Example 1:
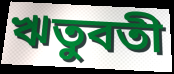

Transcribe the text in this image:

ঋতুবতী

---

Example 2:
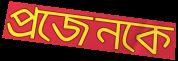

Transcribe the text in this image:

প্রজেনকে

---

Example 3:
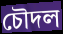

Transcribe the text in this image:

চৌদল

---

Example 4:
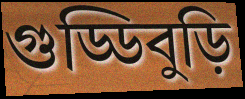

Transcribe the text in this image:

গুড্ডিবুড়ি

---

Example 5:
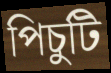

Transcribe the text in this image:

পিচুটি